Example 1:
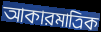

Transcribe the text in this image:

আকারমাত্রিক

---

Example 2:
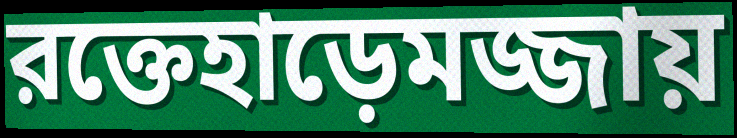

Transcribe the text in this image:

রক্তেহাড়েমজ্জায়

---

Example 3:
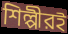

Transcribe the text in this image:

শিল্পীরই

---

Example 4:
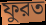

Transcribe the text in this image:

ফুরত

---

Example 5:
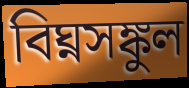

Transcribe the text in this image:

বিঘ্নসঙ্কুল